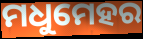
ମଧୁମେହର